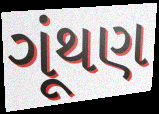
ગૂંથણ